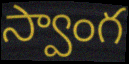
స్వాంగ